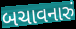
બચાવનારું